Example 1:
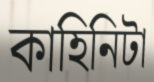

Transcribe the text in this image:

কাহিনিটা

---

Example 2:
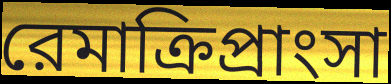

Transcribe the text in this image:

রেমাক্রিপ্রাংসা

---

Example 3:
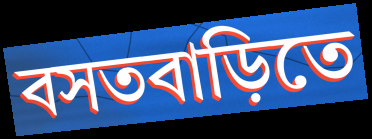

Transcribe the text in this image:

বসতবাড়িতে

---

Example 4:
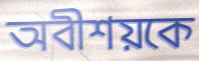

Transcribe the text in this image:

অবীশয়কে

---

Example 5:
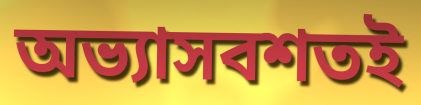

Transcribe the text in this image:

অভ্যাসবশতই